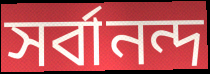
সর্বানন্দ